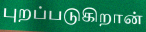
புறப்படுகிறான்